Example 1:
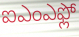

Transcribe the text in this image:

ఐఎంఎఫ్లో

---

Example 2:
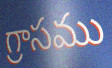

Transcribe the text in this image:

గ్రాసము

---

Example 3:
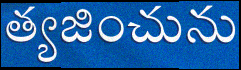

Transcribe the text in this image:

త్యజించును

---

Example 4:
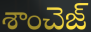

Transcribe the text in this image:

శాంచెజ్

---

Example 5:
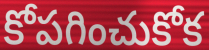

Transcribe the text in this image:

కోపగించుకోక